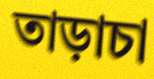
তাড়াচা